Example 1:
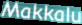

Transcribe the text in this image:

Makkalu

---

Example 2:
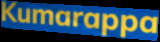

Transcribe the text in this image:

Kumarappa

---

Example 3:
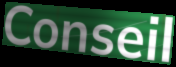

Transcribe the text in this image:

Conseil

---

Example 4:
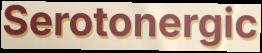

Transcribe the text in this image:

Serotonergic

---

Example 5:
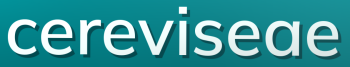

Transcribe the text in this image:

cereviseae